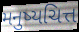
મનુષ્યચિત્ત